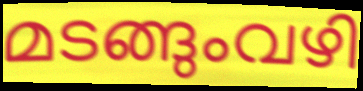
മടങ്ങുംവഴി